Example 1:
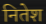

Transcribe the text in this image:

नितेश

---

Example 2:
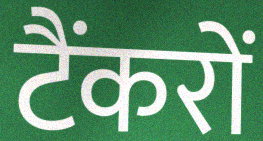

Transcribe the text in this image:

टैंकरों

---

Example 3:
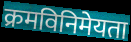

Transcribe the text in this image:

क्रमविनिमेयता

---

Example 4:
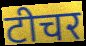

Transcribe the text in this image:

टीचर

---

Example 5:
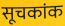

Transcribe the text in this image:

सूचकांक